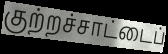
குற்றச்சாட்டைப்